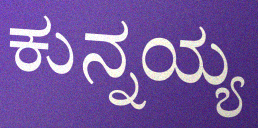
ಕುನ್ನಯ್ಯ